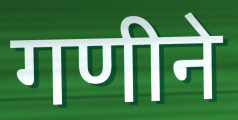
गणीने